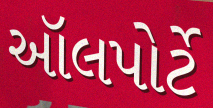
ઑલપોર્ટે